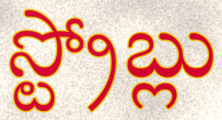
స్ట్రోబ్లు